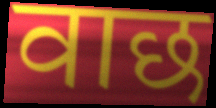
वाछ